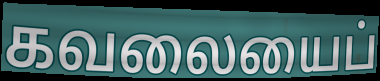
கவலையைப்